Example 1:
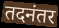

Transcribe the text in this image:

तदनंतर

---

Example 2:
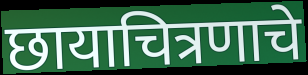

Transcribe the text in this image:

छायाचित्रणाचे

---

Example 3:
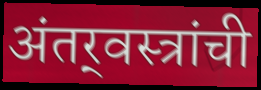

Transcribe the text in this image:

अंतर्वस्त्रांची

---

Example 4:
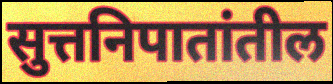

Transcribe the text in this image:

सुत्तनिपातांतील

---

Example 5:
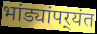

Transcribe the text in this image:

भांड्यांपर्यंत